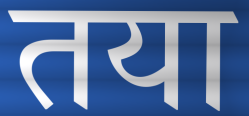
तया